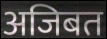
अजिबत